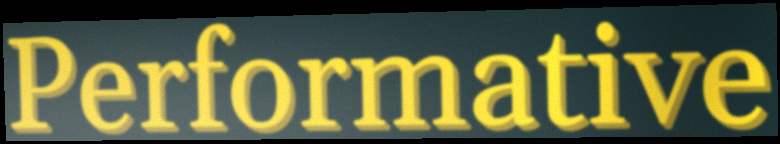
Performative